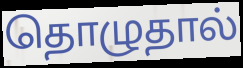
தொழுதால்